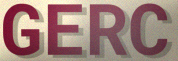
GERC